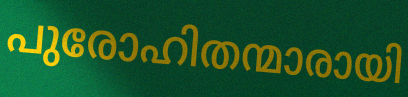
പുരോഹിതന്മാരായി